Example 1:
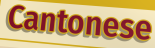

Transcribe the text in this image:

Cantonese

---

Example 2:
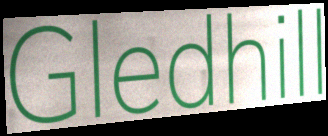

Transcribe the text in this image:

Gledhill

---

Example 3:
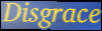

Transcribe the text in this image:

Disgrace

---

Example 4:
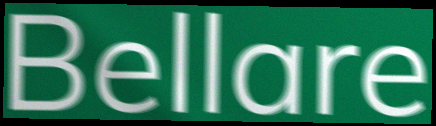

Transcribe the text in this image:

Bellare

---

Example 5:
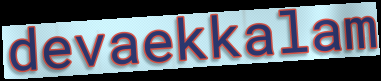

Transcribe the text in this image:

devaekkalam